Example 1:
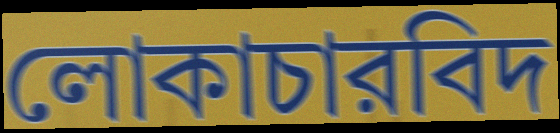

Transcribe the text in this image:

লোকাচারবিদ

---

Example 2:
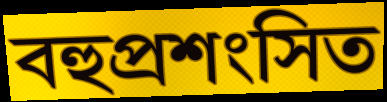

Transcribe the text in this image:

বহুপ্রশংসিত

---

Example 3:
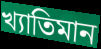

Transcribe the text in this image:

খ্যাতিমান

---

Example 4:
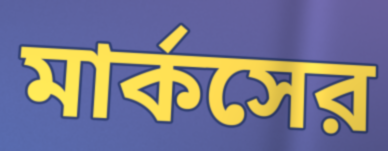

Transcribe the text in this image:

মার্কসের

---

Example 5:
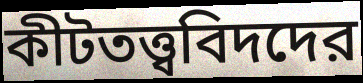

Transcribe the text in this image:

কীটতত্ত্ববিদদের